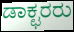
ಡಾಕ್ಟರರು